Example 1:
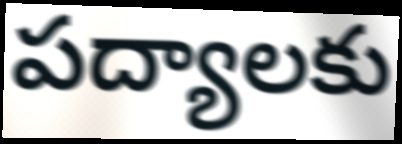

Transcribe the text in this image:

పద్యాలకు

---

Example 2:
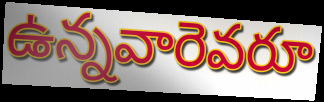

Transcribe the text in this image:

ఉన్నవారెవరూ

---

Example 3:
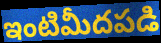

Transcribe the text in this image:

ఇంటిమీదపడి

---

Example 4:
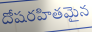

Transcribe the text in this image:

దోషరహితమైన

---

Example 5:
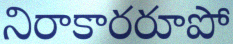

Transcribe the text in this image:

నిరాకారరూపో